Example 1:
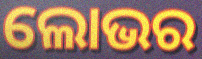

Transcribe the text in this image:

ଲୋଭର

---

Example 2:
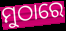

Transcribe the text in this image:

ମୁଠାରେ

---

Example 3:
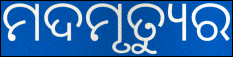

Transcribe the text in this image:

ମଦମୃତ୍ୟୁର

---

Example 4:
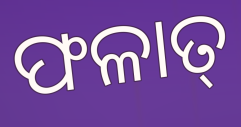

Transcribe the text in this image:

ଫଳାତ୍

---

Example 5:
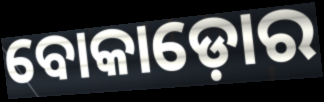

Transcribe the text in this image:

ବୋକାଡ଼ୋର